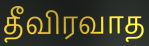
தீவிரவாத